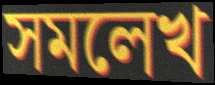
সমলেখ